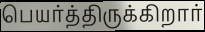
பெயர்த்திருக்கிறார்